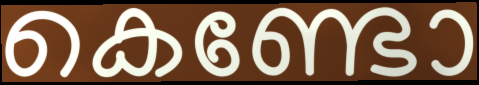
കെണ്ടോ